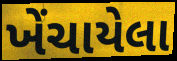
ખેંચાયેલા